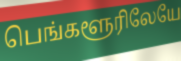
பெங்களூரிலேயே